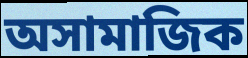
অসামাজিক